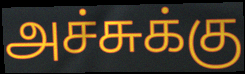
அச்சுக்கு